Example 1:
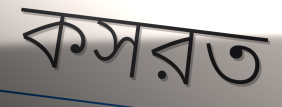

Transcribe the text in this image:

কসরত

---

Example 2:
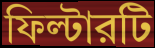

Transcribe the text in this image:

ফিল্টারটি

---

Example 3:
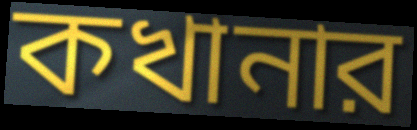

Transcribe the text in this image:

কখানার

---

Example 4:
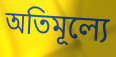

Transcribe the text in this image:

অতিমূল্যে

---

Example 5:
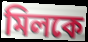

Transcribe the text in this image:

মিলকে